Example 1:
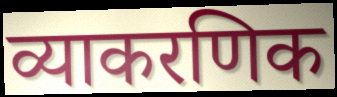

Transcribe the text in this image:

व्याकरणिक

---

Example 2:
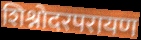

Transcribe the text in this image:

शिश्नोदरपरायण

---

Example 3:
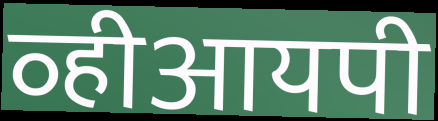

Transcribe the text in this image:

व्हीआयपी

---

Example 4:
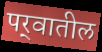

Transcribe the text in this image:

पर्वातील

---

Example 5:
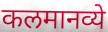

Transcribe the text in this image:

कलमानव्ये